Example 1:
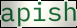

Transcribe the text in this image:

apish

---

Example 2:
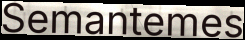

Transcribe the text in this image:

Semantemes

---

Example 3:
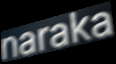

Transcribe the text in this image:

naraka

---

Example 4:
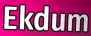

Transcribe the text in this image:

Ekdum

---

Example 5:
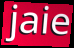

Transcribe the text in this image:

jaie